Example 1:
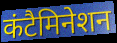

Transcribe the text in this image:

कंटैमिनेशन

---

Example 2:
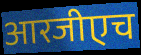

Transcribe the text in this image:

आरजीएच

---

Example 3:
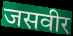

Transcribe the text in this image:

जसवीर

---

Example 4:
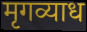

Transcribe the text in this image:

मृगव्याध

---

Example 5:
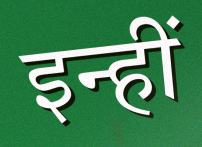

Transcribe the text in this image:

इन्हीं